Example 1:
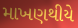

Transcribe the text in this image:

માખણથીયે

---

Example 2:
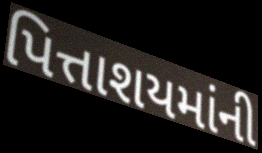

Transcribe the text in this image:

પિત્તાશયમાંની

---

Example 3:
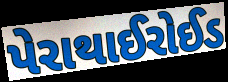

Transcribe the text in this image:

પેરાથાઈરોઈડ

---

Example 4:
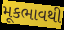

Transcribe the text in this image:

મૂકભાવથી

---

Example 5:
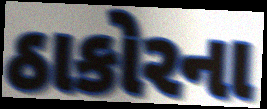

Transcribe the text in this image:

ઠાકોરના